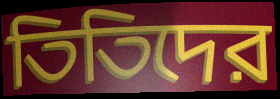
তিতিদের